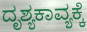
ದೃಶ್ಯಕಾವ್ಯಕ್ಕೆ